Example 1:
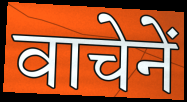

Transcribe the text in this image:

वाचेनें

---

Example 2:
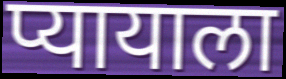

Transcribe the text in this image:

प्यायाला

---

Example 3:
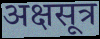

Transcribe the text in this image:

अक्षसूत्र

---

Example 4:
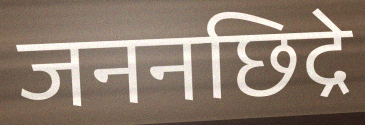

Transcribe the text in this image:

जननछिद्रे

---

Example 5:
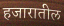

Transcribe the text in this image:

हजारातील